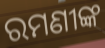
ରମଣୀଙ୍କ